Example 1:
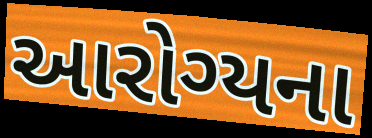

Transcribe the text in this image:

આરોગ્યના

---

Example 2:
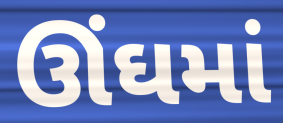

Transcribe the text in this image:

ઊંઘમાં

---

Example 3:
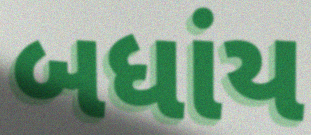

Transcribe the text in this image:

બધાંય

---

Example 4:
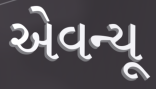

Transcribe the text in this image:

એવન્યૂ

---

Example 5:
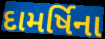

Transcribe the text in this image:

દામર્ષિના